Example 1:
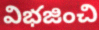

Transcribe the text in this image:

విభజించి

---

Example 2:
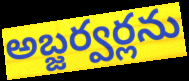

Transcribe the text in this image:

అబ్జర్వర్లను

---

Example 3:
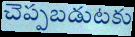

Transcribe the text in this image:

చెప్పబడుటకు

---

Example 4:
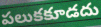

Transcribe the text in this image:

పలుకకూడదు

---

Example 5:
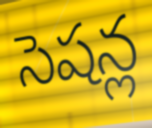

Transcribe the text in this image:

సెషన్ల